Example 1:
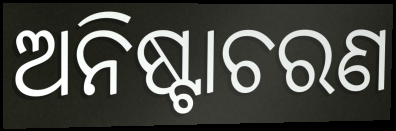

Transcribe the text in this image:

ଅନିଷ୍ଟାଚରଣ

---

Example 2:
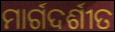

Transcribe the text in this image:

ମାର୍ଗଦର୍ଶୀତ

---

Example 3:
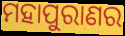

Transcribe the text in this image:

ମହାପୁରାଣର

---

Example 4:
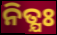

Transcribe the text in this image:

ନିତ୍ଯଃ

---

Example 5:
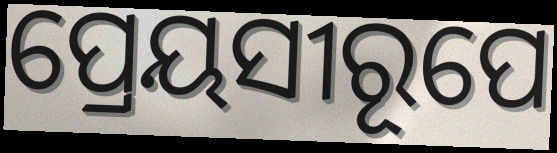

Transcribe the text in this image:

ପ୍ରେୟସୀରୂପେ